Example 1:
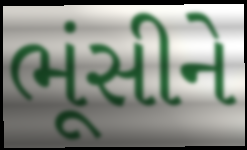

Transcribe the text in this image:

ભૂંસીને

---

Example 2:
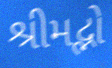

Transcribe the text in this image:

શ્રીમદ્ભો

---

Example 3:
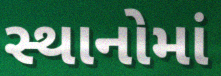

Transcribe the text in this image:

સ્થાનોમાં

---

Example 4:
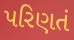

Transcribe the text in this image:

પરિણતં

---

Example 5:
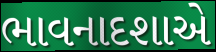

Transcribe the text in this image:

ભાવનાદશાએ